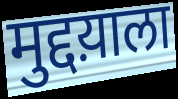
मुद्दय़ाला